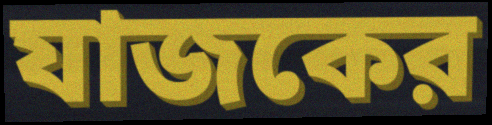
যাজকের